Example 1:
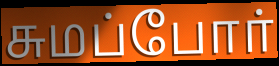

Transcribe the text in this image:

சுமப்போர்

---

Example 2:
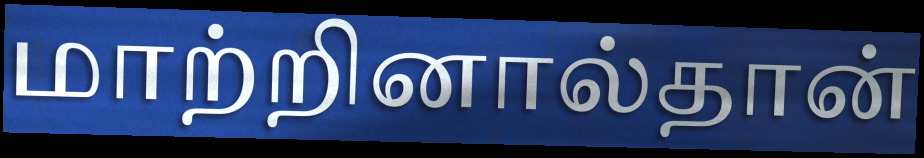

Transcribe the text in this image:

மாற்றினால்தான்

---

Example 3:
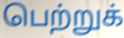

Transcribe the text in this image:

பெற்றுக்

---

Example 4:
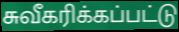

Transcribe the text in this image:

சுவீகரிக்கப்பட்டு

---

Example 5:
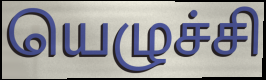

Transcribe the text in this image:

யெழுச்சி